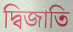
দ্বিজাতি